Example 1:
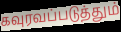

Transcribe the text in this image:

கவுரவப்படுத்தும்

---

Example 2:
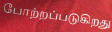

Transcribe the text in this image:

போற்றப்படுகிறது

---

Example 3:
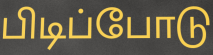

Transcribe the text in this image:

பிடிப்போடு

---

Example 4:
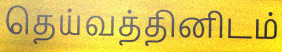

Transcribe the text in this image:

தெய்வத்தினிடம்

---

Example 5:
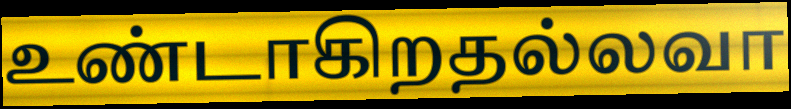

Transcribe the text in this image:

உண்டாகிறதல்லவா